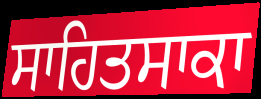
ਸਾਹਿਤਸਾਕਾ